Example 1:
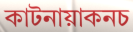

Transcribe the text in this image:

কাটনায়াকনচ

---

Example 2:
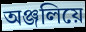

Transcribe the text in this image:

অঞ্জলিয়ে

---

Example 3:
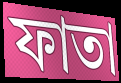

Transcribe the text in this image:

ফাতা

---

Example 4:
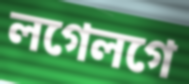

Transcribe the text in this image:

লগেলগে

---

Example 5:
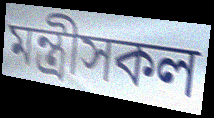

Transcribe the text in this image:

মন্ত্ৰীসকল